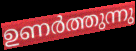
ഉണർത്തുന്നു